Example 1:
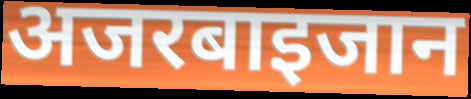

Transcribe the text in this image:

अजरबाइजान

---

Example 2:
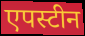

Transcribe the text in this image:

एपस्टीन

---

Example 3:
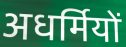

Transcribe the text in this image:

अधर्मियों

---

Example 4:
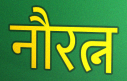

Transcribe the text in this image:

नौरत्न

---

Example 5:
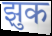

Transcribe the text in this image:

झुक